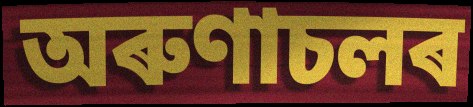
অৰুণাচলৰ